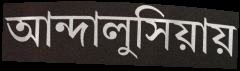
আন্দালুসিয়ায়